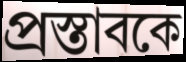
প্রস্তাবকে